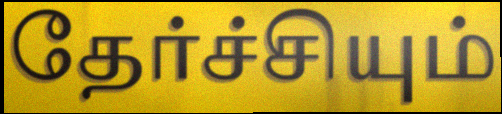
தேர்ச்சியும்